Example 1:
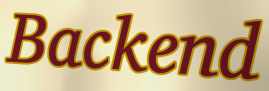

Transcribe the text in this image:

Backend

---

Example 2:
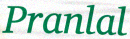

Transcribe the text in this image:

Pranlal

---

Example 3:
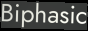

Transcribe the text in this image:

Biphasic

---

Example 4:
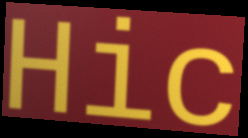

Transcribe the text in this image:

Hic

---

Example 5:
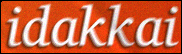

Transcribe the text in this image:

idakkai